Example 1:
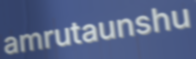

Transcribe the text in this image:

amrutaunshu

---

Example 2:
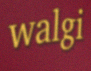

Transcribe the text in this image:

walgi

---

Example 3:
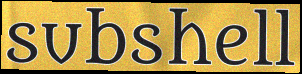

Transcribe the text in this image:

subshell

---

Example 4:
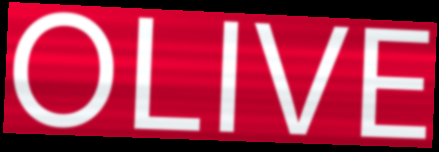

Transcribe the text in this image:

OLIVE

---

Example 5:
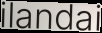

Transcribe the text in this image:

ilandai